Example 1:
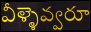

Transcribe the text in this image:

వీళ్ళెవ్వరూ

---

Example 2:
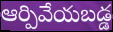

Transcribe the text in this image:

ఆర్పివేయబడ్డ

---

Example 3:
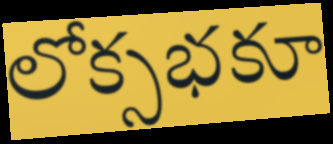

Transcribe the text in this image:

లోక్సభకూ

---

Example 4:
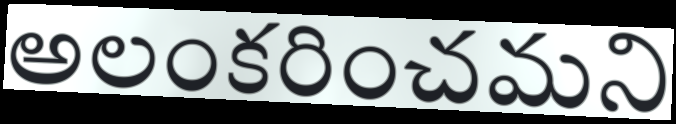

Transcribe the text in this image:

అలంకరించమని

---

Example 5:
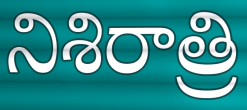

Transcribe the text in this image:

నిశిరాత్రి